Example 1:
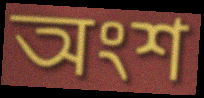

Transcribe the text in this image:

অংশ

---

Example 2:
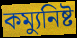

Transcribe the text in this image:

কম্যুনিষ্ট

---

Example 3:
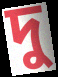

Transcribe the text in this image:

দু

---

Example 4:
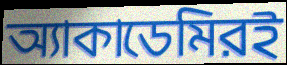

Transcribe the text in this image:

অ্যাকাডেমিরই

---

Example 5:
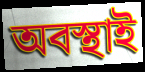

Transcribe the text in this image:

অবস্থাই